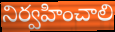
నిర్వహించాలి